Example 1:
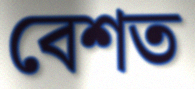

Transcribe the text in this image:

বেশত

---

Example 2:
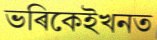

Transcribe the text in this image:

ভৰিকেইখনত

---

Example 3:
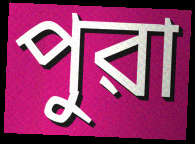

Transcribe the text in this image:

পুৱা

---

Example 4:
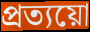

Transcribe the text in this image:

প্ৰত্যয়ো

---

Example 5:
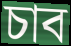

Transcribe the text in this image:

চাব